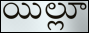
యిల్లూ